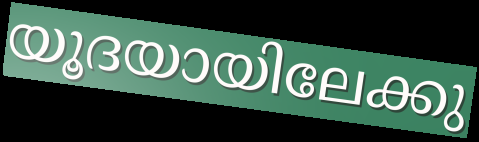
യൂദയായിലേക്കു